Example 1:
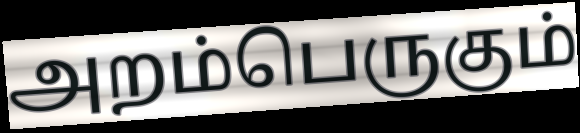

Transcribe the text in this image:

அறம்பெருகும்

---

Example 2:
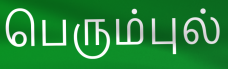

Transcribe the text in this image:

பெரும்புல்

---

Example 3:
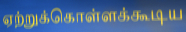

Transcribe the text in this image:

ஏற்றுக்கொள்ளக்கூடிய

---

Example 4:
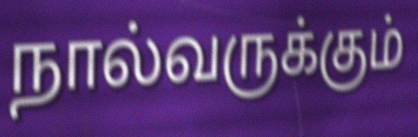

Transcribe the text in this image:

நால்வருக்கும்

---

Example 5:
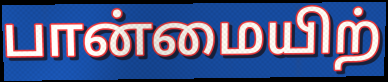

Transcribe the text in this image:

பான்மையிற்